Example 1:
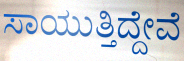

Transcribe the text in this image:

ಸಾಯುತ್ತಿದ್ದೇವೆ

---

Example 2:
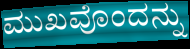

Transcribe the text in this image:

ಮುಖವೊಂದನ್ನು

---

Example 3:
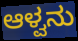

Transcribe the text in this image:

ಆಳ್ವನು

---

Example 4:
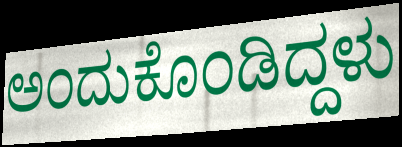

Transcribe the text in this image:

ಅಂದುಕೊಂಡಿದ್ದಳು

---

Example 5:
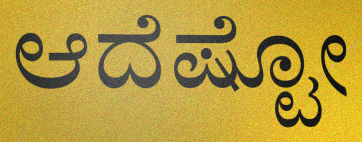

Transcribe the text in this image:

ಆದೆಷ್ಟೋ